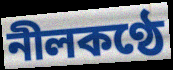
নীলকণ্ঠে